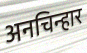
अनचिन्हार